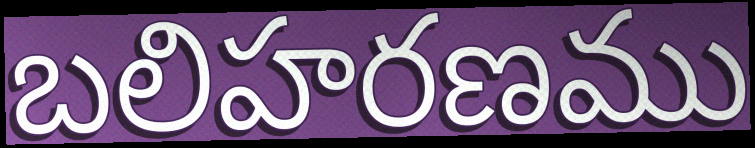
బలిహరణము